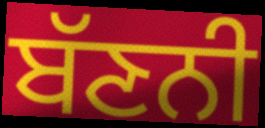
ਬੱਣਨੀ